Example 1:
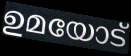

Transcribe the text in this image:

ഉമയോട്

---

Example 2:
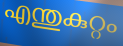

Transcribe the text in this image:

എന്തുകുറ്റം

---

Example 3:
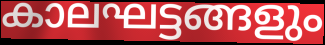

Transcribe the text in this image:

കാലഘട്ടങ്ങളും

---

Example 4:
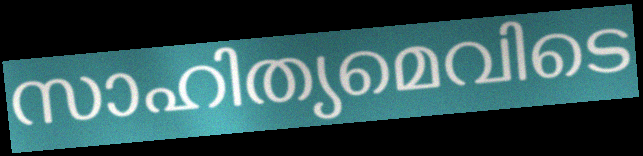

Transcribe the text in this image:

സാഹിത്യമെവിടെ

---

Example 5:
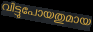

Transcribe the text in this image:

വിട്ടുപോയതുമായ